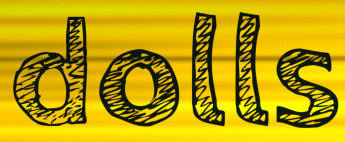
dolls